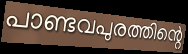
പാണ്ടവപുരത്തിന്റെ